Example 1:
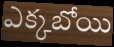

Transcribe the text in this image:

ఎక్కబోయి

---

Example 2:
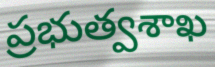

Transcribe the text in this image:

ప్రభుత్వశాఖ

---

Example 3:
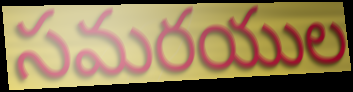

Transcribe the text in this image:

సమరయుల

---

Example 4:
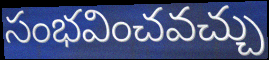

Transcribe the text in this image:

సంభవించవచ్చు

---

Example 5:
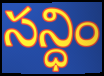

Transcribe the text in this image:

సన్ధిం